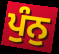
ਪੁੰਨੁ